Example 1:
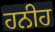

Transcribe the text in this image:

ਹਨੀਹ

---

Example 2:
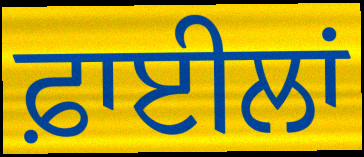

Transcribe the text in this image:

ਫ਼ਾਈਲਾਂ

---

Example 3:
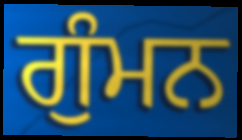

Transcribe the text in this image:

ਗੁੰਮਨ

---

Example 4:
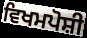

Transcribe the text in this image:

ਵਿਖਮਪੋਸ਼ੀ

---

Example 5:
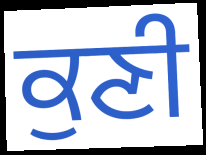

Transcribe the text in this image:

ਕੁਣੀ